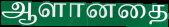
ஆளானதை